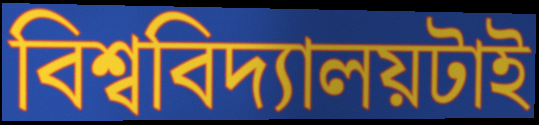
বিশ্ববিদ্যালয়টাই